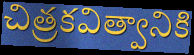
చిత్రకవిత్వానికి